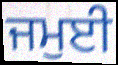
ਜਮੁਈ